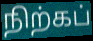
நிற்கப்